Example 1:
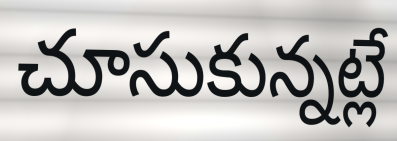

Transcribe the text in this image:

చూసుకున్నట్లే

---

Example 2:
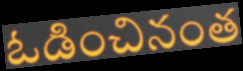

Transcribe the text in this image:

ఓడించినంత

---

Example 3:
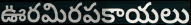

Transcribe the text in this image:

ఊరమిరపకాయలు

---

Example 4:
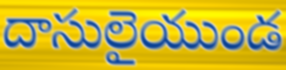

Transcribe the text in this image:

దాసులైయుండ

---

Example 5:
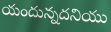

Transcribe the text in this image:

యందున్నదనియు